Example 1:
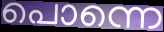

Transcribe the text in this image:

പൊന്നെ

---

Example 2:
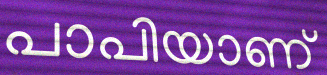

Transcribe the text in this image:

പാപിയാണ്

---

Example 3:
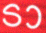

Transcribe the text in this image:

ടാ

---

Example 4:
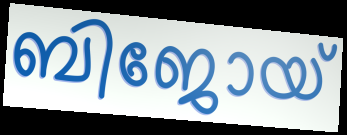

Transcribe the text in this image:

ബിജോയ്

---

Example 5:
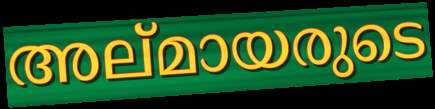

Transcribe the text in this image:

അല്മായരുടെ